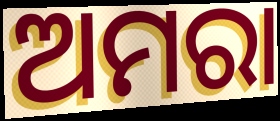
ଅମରା